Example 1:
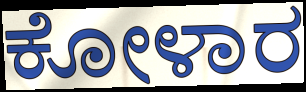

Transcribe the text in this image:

ಕೋಳಾರ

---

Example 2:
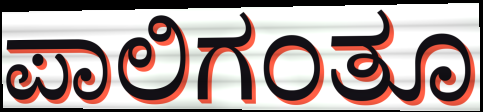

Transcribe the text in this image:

ಪಾಲಿಗಂತೂ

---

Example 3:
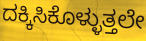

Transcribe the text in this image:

ದಕ್ಕಿಸಿಕೊಳ್ಳುತ್ತಲೇ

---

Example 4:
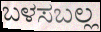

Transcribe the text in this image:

ಬಳಸಬಲ್ಲ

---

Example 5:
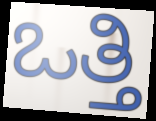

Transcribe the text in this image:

ಒತ್ತಿ